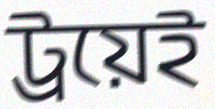
ট্রয়েই